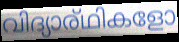
വിദ്യാര്ഥികളോ